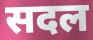
सदल